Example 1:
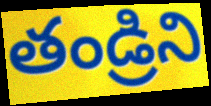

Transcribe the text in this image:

తండ్రిని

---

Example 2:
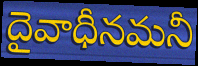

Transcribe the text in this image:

దైవాధీనమనీ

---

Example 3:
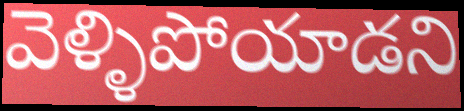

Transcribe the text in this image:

వెళ్ళిపోయాడని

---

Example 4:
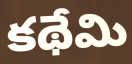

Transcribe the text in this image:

కథేమి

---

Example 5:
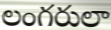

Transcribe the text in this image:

లంగరులా